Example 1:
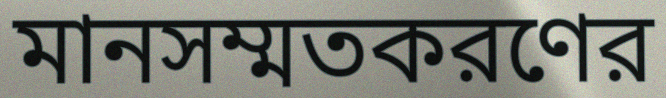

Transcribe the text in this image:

মানসম্মতকরণের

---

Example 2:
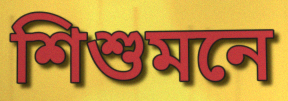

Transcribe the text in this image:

শিশুমনে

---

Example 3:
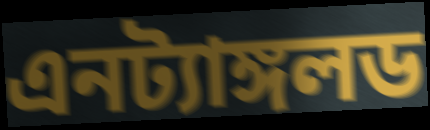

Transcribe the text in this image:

এনট্যাঙ্গলড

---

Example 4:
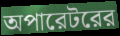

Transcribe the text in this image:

অপারেটরের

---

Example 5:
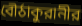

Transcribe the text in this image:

বৌঠাকুরানীর